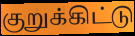
குறுக்கிட்டு